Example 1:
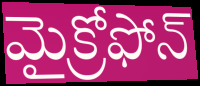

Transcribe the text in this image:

మైక్రోఫోన్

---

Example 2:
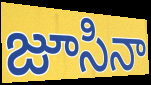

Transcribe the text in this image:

జూసినా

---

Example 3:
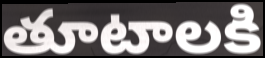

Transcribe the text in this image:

తూటాలకి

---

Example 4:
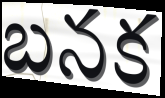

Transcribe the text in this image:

బనక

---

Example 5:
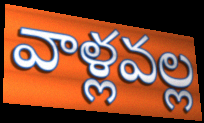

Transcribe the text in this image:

వాళ్లవల్ల